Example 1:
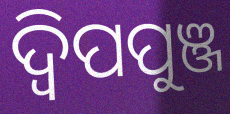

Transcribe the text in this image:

ଦ୍ଵିପପୁଞ୍ଜ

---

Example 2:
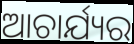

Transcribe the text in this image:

ଆଚାର୍ଯ୍ୟର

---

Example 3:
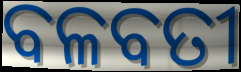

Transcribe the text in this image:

ବଳବତୀ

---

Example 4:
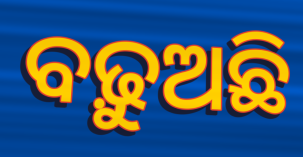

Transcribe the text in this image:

ବଢ଼ୁଅଛି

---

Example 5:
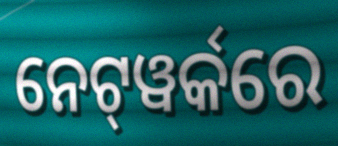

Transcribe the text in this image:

ନେଟ୍‍ୱର୍କରେ